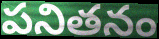
పనితనం